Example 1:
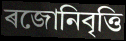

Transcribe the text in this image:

ৰজোনিবৃত্তি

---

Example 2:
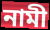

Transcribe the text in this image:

নামী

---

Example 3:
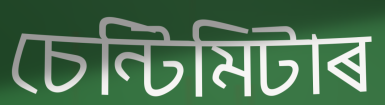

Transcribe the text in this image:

চেন্টিমিটাৰ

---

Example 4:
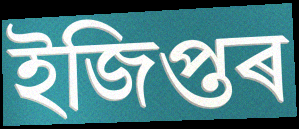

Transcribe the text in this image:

ইজিপ্তৰ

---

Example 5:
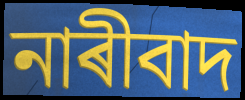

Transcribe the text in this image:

নাৰীবাদ